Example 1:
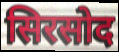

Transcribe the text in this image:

सिरसोद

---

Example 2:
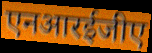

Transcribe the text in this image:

एनआरईजीए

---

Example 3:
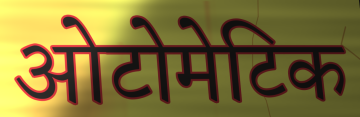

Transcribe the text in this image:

ओटोमेटिक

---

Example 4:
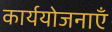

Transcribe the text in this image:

कार्ययोजनाएँ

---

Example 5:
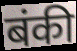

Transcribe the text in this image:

बंकी